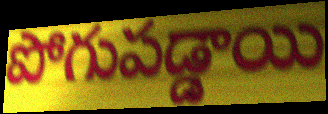
పోగుపడ్డాయి